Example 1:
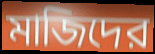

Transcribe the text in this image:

মাজিদের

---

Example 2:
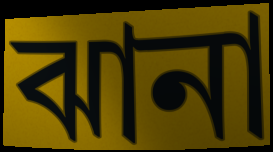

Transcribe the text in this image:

ঝানা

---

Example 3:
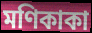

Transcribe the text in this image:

মণিকাকা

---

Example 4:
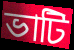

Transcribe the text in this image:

ভাটি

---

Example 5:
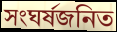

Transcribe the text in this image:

সংঘর্ষজনিত